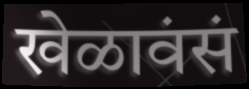
खेळावंसं